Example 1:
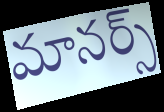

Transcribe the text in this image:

మానర్స్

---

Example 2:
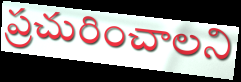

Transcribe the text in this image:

ప్రచురించాలని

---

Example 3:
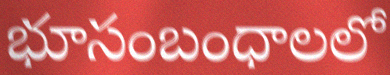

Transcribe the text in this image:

భూసంబంధాలలో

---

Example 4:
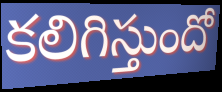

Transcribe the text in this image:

కలిగిస్తుందో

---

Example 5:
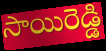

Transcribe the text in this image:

సాయిరెడ్డి